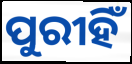
ପୁରୀହିଁ